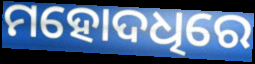
ମହୋଦଧିରେ